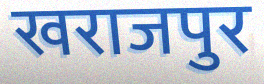
खराजपुर